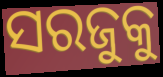
ସରଜୁକୁ